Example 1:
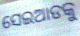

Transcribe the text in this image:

ସେଇଆଡକୁ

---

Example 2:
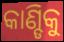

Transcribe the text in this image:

କାଣ୍ଡିକୁ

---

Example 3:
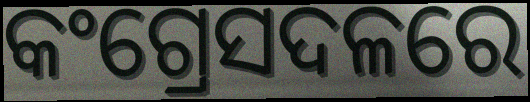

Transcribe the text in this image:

କଂଗ୍ରେସଦଳରେ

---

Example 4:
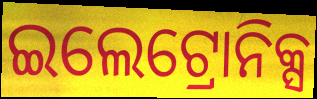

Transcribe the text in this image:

ଇଲେଟ୍ରୋନିକ୍ସ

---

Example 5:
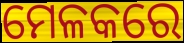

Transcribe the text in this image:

ମେଳକରେ